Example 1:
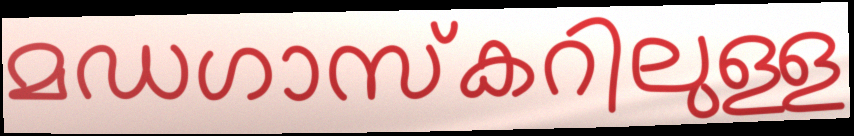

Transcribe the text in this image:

മഡഗാസ്കറിലുള്ള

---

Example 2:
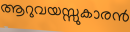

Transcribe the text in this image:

ആറുവയസ്സുകാരൻ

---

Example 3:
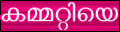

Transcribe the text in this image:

കമ്മറ്റിയെ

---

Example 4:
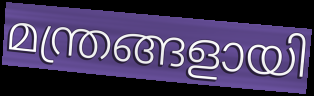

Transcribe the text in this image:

മന്ത്രങ്ങളായി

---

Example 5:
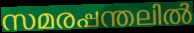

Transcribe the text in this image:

സമരപ്പന്തലിൽ